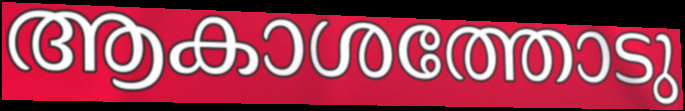
ആകാശത്തോടു